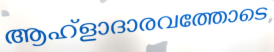
ആഹ്ളാദാരവത്തോടെ